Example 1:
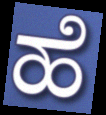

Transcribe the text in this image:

ಹೆ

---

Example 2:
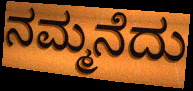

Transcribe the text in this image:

ನಮ್ಮನೆದು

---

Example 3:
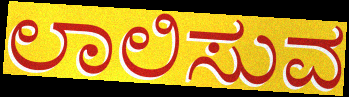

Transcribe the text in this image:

ಲಾಲಿಸುವ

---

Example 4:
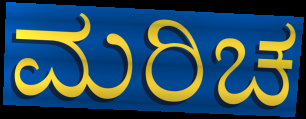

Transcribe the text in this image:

ಮರಿಚ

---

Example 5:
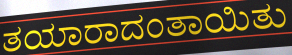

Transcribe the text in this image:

ತಯಾರಾದಂತಾಯಿತು